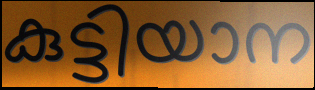
കുട്ടിയാന